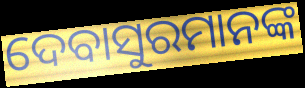
ଦେବାସୁରମାନଙ୍କ